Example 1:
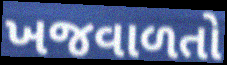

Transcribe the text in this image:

ખજવાળતો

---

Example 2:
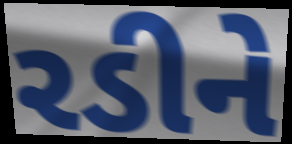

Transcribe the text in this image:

રડીને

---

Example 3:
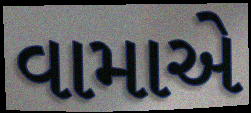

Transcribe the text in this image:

વામાએ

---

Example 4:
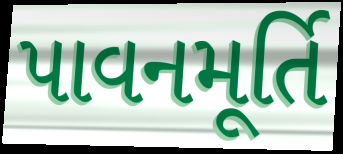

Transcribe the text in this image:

પાવનમૂર્તિ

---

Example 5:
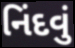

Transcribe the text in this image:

નિંદવું